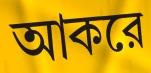
আকরে